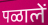
पळालें